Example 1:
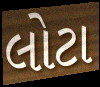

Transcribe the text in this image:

લોટા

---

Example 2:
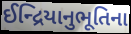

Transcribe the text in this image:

ઈન્દ્રિયાનુભૂતિના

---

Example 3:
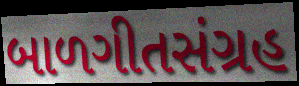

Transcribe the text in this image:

બાળગીતસંગ્રહ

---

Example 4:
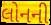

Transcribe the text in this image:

લોનની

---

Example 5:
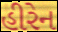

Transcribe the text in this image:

હીરેન